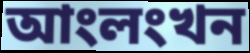
আংলংখন